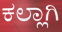
ಕಲ್ಲಾಗಿ